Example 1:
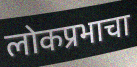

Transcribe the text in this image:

लोकप्रभाचा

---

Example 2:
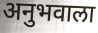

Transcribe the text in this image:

अनुभवाला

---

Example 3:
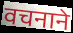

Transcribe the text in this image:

वचनाने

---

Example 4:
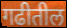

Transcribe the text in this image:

गढीतील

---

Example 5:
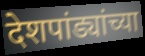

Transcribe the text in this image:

देशपांड्यांच्या